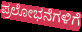
ಪ್ರಲೋಭನೆಗಳಿಗೆ